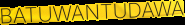
BATUWANTUDAWA